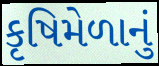
કૃષિમેળાનું